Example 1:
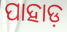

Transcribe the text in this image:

ପାହାଡ଼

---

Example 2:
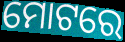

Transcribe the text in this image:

ମୋଟରେ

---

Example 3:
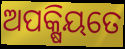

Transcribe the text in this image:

ଅପକ୍ଷିୟତେ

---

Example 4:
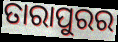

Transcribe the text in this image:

ତାରାପୁରର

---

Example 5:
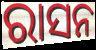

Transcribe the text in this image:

ରାସନ